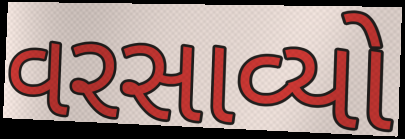
વરસાવ્યો